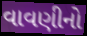
વાવણીનો